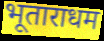
भूताराधम